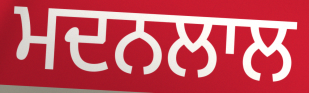
ਮਦਨਲਾਲ